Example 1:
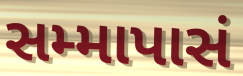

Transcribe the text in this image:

સમ્માપાસં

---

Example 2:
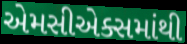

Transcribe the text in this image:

એમસીએક્સમાંથી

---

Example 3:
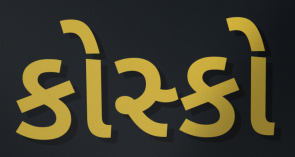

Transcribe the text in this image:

કોસ્કો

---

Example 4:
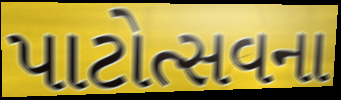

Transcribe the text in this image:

પાટોત્સવના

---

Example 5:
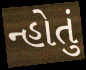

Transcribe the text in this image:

ન્હોતું